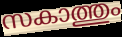
സകാത്തും